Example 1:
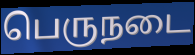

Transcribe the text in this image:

பெருநடை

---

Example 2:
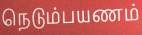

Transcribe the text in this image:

நெடும்பயணம்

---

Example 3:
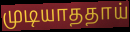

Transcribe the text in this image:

முடியாததாய்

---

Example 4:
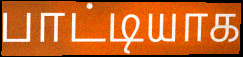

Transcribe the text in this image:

பாட்டியாக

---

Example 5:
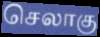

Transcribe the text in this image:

செலாகு